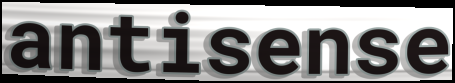
antisense